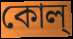
কোল্